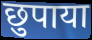
छुपाया